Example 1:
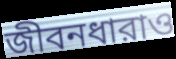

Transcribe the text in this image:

জীবনধারাও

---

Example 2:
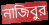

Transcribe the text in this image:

নাজিবুর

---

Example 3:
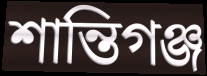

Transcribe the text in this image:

শান্তিগঞ্জ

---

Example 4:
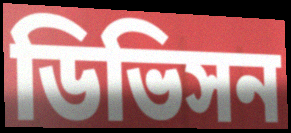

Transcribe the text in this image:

ডিভিসন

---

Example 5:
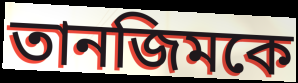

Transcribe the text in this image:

তানজিমকে